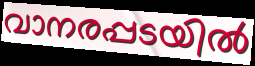
വാനരപ്പടയിൽ